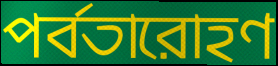
পর্বতারোহণ